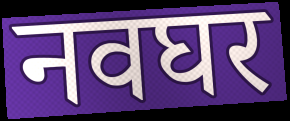
नवघर